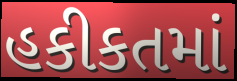
હકીકતમાં